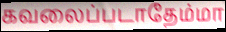
கவலைப்படாதேம்மா